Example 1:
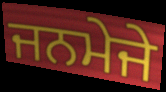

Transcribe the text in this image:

ਜਨਮੇਜੇ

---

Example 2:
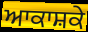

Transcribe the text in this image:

ਆਕਾਸ਼ਕੇ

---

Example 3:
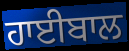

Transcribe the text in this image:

ਹਾਈਬਾਲ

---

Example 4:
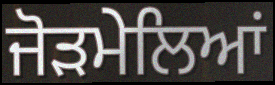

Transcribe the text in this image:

ਜੋੜਮੇਲਿਆਂ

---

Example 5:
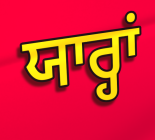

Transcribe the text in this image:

ਯਾਰ੍ਹਾਂ